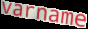
varname